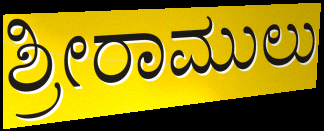
ಶ್ರೀರಾಮುಲು